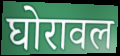
घोरावल